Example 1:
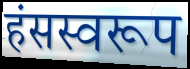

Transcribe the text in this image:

हंसस्वरूप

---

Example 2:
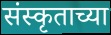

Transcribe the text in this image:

संस्कृताच्या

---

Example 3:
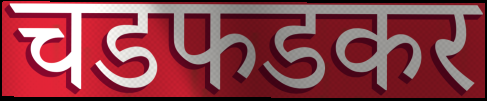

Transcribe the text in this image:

चडफडकर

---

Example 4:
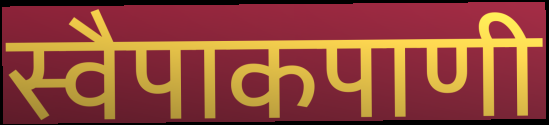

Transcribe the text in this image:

स्वैपाकपाणी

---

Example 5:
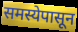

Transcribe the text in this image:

समस्येपासून